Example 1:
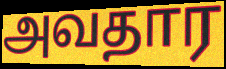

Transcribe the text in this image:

அவதார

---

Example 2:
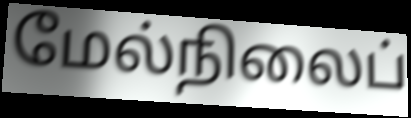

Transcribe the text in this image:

மேல்நிலைப்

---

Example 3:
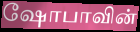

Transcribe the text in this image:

ஷோபாவின்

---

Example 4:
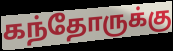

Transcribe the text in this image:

கந்தோருக்கு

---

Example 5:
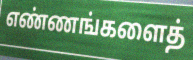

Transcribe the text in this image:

எண்ணங்களைத்